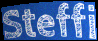
Steffi